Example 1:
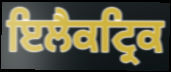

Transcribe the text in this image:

ਇਲੈਕਟ੍ਰਿਕ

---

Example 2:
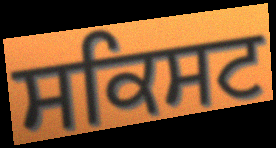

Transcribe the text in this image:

ਸਕਿਸਟ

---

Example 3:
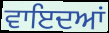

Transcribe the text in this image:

ਵਾਇਦਆਂ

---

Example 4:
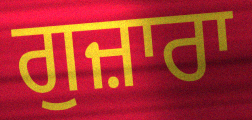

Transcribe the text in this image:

ਗੁਜ਼ਾਰਾ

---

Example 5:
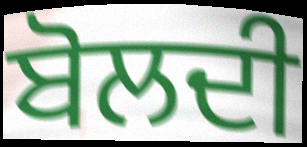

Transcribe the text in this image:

ਬੋਲਦੀ